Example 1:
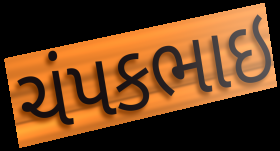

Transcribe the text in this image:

ચંપકભાઇ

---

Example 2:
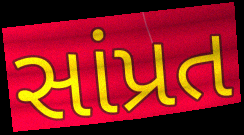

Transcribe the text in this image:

સાંપ્રત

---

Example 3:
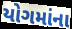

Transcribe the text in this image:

યોગમાંના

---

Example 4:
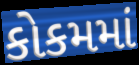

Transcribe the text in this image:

કોકમમાં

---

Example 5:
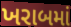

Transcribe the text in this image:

ખરાબમાં